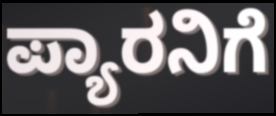
ಪ್ಯಾರನಿಗೆ